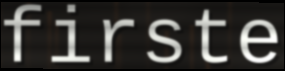
firste